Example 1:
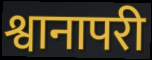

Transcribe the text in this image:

श्वानापरी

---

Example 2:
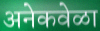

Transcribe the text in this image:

अनेकवेळा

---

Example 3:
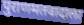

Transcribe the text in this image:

पुराणमतवादाला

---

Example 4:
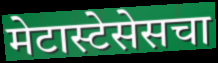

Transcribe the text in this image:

मेटास्टेसेसचा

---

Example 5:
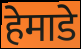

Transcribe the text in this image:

हेमाडे